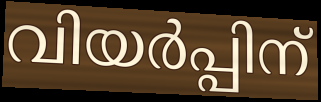
വിയർപ്പിന്